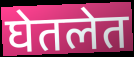
घेतलेत